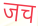
जच